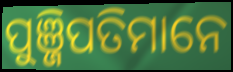
ପୁଞ୍ଜିପତିମାନେ